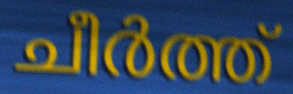
ചീർത്ത്